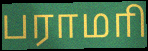
பராமரி